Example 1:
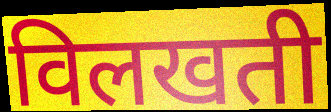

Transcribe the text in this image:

विलखती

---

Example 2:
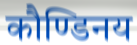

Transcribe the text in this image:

कौण्डिनय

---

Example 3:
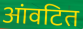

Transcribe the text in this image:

आंवटित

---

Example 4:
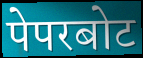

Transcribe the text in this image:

पेपरबोट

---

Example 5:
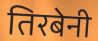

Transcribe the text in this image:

तिरबेनी